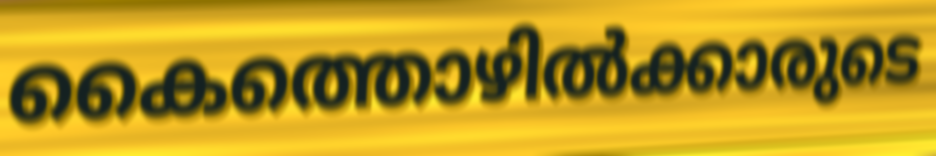
കൈത്തൊഴിൽക്കാരുടെ